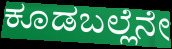
ಕೂಡಬಲ್ಲೆನೇ